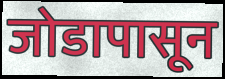
जोडापासून